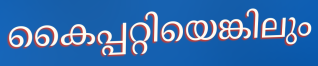
കൈപ്പറ്റിയെങ്കിലും